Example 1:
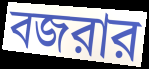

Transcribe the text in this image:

বজরার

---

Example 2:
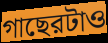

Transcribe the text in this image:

গাছেরটাও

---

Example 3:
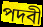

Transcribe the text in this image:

পদবী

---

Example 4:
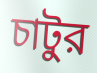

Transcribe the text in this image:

চাটুর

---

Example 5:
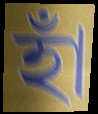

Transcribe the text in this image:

হাঁ